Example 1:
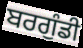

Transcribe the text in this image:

ਬਰਗੁੰਡੀ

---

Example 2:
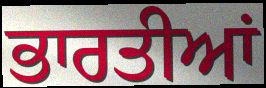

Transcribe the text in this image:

ਭਾਰਤੀਆਂ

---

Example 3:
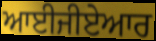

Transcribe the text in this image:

ਆਈਜੀਏਆਰ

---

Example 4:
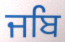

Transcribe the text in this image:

ਜਬਿ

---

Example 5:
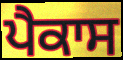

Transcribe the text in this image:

ਪੈਕਾਸ